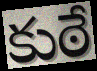
కుఠే